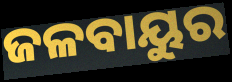
ଜଳବାୟୁର